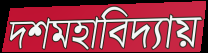
দশমহাবিদ্যায়